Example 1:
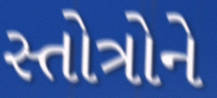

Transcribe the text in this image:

સ્તોત્રોને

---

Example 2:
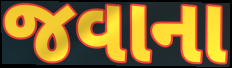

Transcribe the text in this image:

જવાના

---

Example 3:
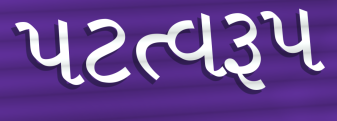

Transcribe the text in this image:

પટત્વરૂપ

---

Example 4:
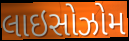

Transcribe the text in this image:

લાઇસોઝોમ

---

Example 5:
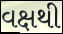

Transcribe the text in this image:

વક્ષથી